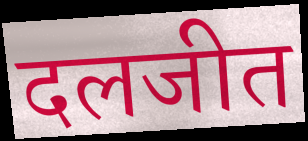
दलजीत